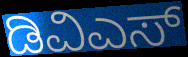
ಡಿವಿಎಸ್